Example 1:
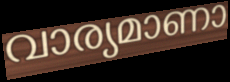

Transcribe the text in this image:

വാര്യമാണാ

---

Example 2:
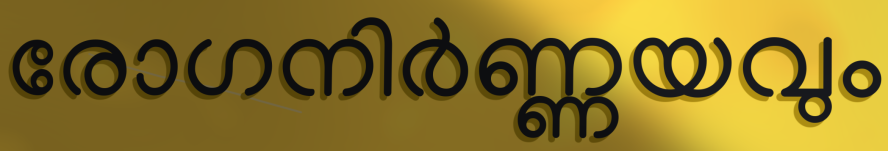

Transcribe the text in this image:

രോഗനിർണ്ണയവും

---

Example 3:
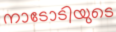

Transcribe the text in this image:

നാടോടിയുടെ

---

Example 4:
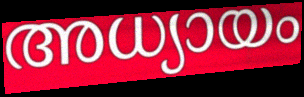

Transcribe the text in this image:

അധ്യായം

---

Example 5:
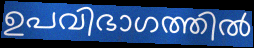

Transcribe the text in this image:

ഉപവിഭാഗത്തിൽ